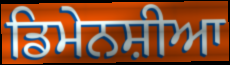
ਡਿਮੇਨਸ਼ੀਆ